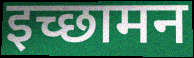
इच्छामन